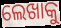
ଲେଖାକୁ